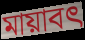
মায়াবৎ